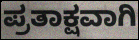
ಪ್ರತಾಕ್ಷವಾಗಿ